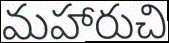
మహారుచి